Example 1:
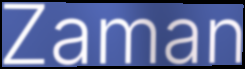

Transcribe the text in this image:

Zaman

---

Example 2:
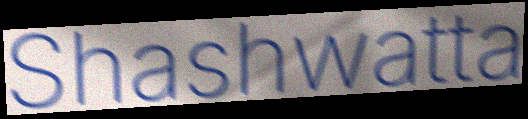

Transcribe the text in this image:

Shashwatta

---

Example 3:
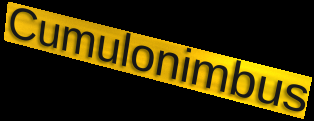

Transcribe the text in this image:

Cumulonimbus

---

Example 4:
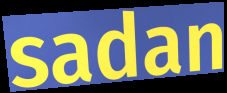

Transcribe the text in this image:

sadan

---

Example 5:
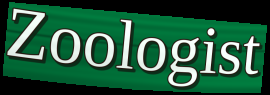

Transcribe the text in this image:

Zoologist